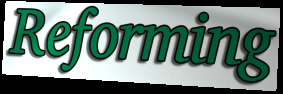
Reforming